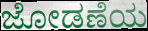
ಜೋಡಣೆಯ